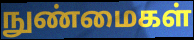
நுண்மைகள்